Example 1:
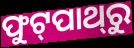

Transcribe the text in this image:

ଫୁଟ୍‌ପାଥ୍‌ରୁ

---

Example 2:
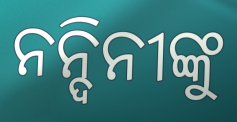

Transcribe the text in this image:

ନନ୍ଦିନୀଙ୍କୁ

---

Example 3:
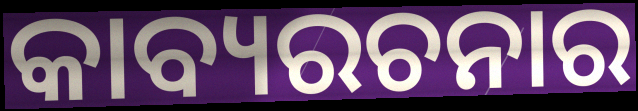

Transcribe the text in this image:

କାବ୍ୟରଚନାର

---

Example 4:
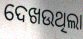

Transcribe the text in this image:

ଦେଖଉଥିଲା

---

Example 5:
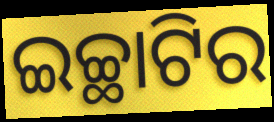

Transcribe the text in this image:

ଇଚ୍ଛାଟିର